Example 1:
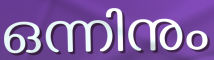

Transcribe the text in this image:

ഒന്നിനും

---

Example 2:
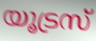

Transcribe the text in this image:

യൂട്രസ്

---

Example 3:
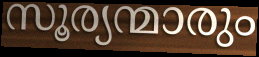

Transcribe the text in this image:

സൂര്യന്മാരും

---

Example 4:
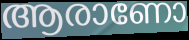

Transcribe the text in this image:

ആരാണോ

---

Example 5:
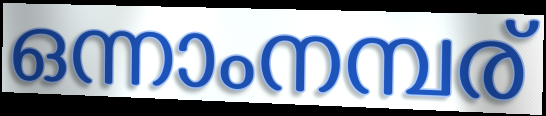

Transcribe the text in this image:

ഒന്നാംനമ്പര്